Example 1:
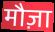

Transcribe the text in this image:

मौज़ा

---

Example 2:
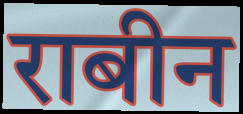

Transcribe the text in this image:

राबीन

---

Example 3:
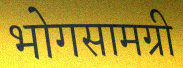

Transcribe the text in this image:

भोगसामग्री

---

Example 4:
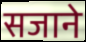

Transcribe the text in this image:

सजाने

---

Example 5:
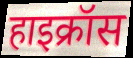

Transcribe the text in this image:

हाइक्रॉस